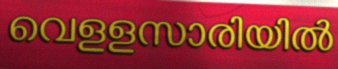
വെളളസാരിയിൽ